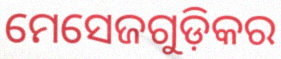
ମେସେଜଗୁଡ଼ିକର